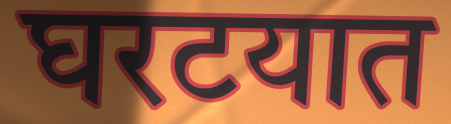
घरटयात